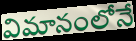
విమానంలోనే